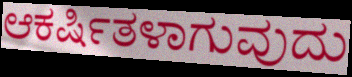
ಆಕರ್ಷಿತಳಾಗುವುದು